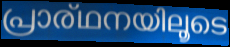
പ്രാര്ഥനയിലൂടെ